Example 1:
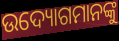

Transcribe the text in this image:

ଉଦ୍ୟୋଗମାନଙ୍କୁ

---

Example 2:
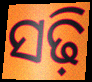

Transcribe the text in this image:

ସଢ଼ି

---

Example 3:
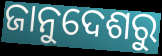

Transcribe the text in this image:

ଜାନୁଦେଶରୁ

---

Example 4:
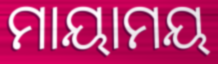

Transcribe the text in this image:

ମାୟାମୟ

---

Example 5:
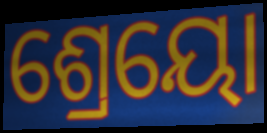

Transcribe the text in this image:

ଶ୍ରେୟୋ